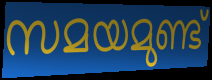
സമയമുണ്ട്